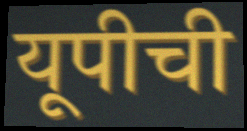
यूपीची